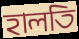
হালতি